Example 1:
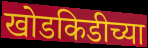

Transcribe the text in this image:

खोडकिडीच्या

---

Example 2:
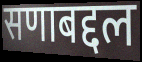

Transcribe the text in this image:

सणाबद्दल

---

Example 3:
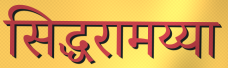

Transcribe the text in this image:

सिद्धरामय्या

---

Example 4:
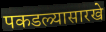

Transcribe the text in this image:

पकडल्यासारखे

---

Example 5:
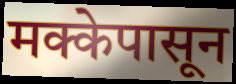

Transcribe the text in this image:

मक्केपासून